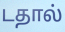
டதால்